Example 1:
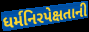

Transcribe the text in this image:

ધર્મનિરપેક્ષતાની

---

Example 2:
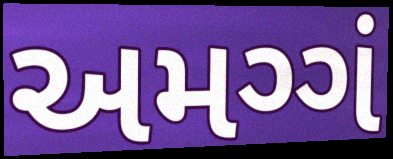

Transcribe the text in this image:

અમગ્ગં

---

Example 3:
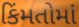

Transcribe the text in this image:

કિંમતોમાં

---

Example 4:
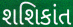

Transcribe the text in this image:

શશિકાંત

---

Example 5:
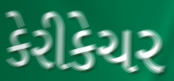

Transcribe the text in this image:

કેરીકેચર